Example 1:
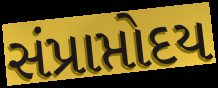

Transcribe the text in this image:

સંપ્રાપ્તોદય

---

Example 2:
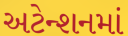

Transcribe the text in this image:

અટેન્શનમાં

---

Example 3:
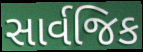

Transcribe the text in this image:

સાર્વજિક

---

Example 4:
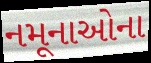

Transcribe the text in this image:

નમૂનાઓના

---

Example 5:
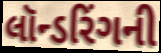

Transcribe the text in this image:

લૉન્ડરિંગની